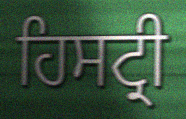
ਹਿਸਟ੍ਰੀ